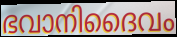
ഭവാനിദൈവം